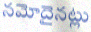
నమోదైనట్లు